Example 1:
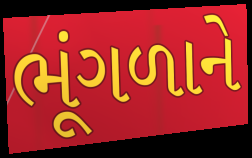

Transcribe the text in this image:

ભૂંગળાને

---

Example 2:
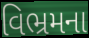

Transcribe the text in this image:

વિભ્રમના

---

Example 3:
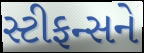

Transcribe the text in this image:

સ્ટીફન્સને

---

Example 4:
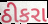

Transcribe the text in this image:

ઠીકરા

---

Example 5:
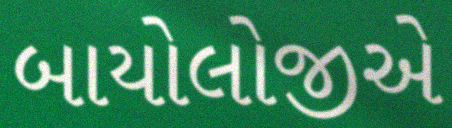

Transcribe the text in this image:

બાયોલોજીએ